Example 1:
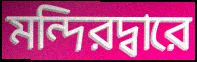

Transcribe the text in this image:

মন্দিরদ্বারে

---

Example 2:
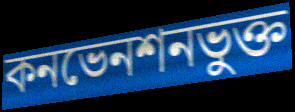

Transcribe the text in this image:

কনভেনশনভুক্ত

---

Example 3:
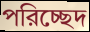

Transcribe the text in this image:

পরিচ্ছেদ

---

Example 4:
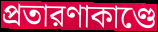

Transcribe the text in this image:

প্রতারণাকাণ্ডে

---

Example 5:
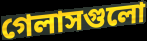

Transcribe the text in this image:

গেলাসগুলো